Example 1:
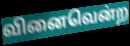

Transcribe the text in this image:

வினைவென்ற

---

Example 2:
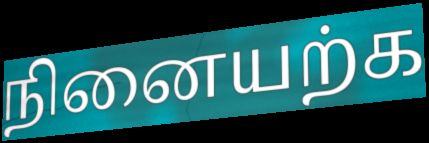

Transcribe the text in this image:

நினையற்க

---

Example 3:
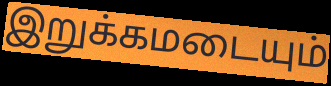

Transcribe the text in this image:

இறுக்கமடையும்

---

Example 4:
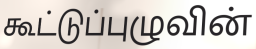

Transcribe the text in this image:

கூட்டுப்புழுவின்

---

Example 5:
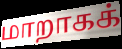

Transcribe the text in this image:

மாறாகக்